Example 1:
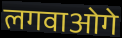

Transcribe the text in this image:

लगवाओगे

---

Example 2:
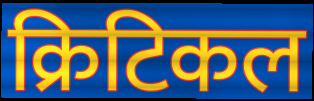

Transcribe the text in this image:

क्रिटिकल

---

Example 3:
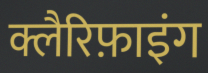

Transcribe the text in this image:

क्लैरिफ़ाइंग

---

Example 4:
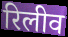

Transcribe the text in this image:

रिलीव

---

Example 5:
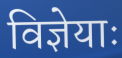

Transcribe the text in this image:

विज्ञेयाः